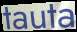
tauta